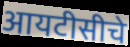
आयटीसीचे